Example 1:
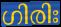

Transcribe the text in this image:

ഗിരിഃ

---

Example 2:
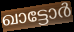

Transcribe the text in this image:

ഖാട്ടോർ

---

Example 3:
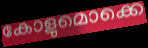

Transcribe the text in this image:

കോളുമൊക്കെ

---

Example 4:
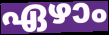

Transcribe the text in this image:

ഏഴാം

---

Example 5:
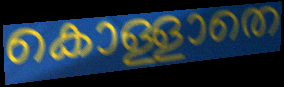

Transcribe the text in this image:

കൊള്ളാതെ